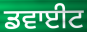
ਡਵਾਈਟ